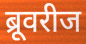
ब्रूवरीज